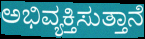
ಅಭಿವ್ಯಕ್ತಿಸುತ್ತಾನೆ